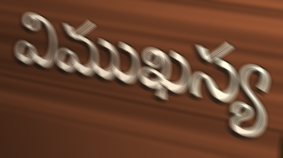
విముఖస్య